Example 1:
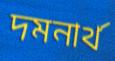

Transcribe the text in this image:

দমনার্থ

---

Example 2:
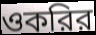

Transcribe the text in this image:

ওকরির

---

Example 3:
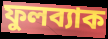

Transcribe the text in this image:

ফুলব্যাক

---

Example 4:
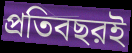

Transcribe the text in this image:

প্রতিবছরই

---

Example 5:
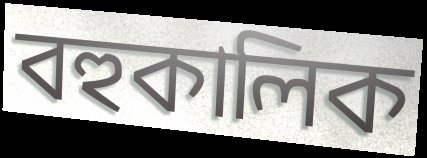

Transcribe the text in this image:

বহুকালিক